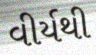
વીર્યથી